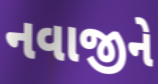
નવાજીને